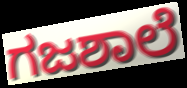
ಗಜಶಾಲೆ